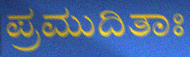
ಪ್ರಮುದಿತಾಃ